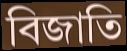
বিজাতি